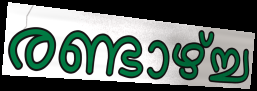
രണ്ടാഴ്ച്ച